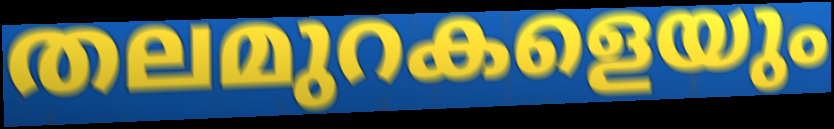
തലമുറകളെയും